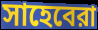
সাহেবেরা